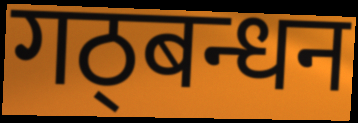
गठ्बन्धन